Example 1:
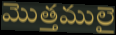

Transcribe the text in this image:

మొత్తములై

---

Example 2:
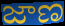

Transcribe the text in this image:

జాణ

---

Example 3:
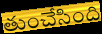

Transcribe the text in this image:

తుంచేసింది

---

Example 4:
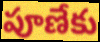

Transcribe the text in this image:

పూణేకు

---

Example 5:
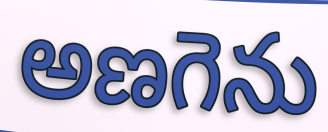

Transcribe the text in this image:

అణగెను